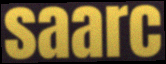
saarc